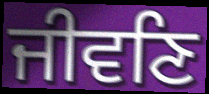
ਜੀਵਣਿ